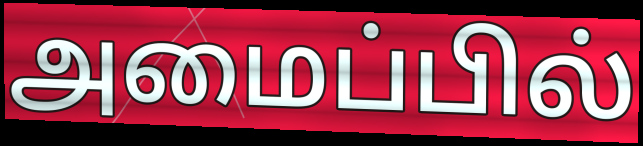
அமைப்பில்